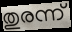
തുരന്ന്